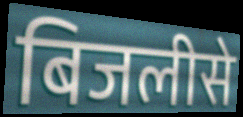
बिजलीसे